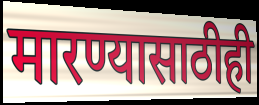
मारण्यासाठीही